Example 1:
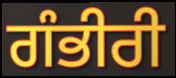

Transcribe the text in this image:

ਗੰਭੀਰੀ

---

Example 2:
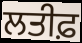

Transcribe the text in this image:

ਲਤੀਫ਼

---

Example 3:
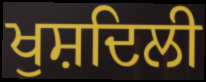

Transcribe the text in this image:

ਖੁਸ਼ਦਿਲੀ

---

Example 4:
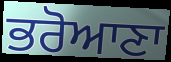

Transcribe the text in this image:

ਭਰੋਆਣਾ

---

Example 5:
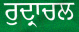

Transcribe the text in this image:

ਰੁਦ੍ਰਾਚਲ